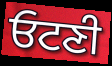
ਓਟਣੀ